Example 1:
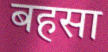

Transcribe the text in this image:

बहसा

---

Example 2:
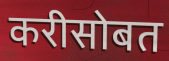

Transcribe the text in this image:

करीसोबत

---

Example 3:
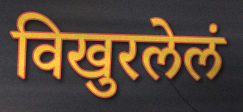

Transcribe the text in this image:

विखुरलेलं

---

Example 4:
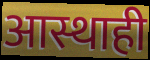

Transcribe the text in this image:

आस्थाही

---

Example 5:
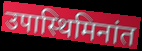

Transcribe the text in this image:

उपास्थिमिनांत